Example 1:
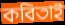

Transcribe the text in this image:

কবিতাই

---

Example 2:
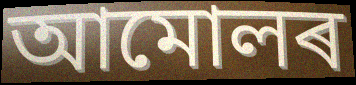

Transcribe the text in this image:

আমোলৰ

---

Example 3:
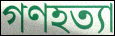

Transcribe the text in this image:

গণহত্যা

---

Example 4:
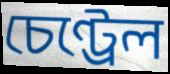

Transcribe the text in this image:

চেণ্ট্ৰেল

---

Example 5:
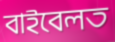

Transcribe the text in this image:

বাইবেলত